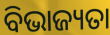
ବିଭାଜ୍ୟତା